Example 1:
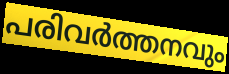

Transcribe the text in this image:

പരിവർത്തനവും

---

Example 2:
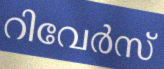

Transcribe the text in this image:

റിവേർസ്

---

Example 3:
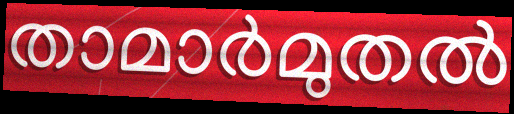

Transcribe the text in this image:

താമാർമുതൽ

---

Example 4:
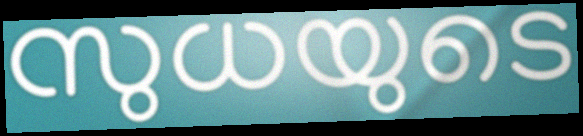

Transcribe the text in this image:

സുധയുടെ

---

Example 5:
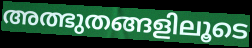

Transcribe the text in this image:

അത്ഭുതങ്ങളിലൂടെ